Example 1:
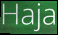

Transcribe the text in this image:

Haja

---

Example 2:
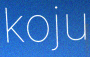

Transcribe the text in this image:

koju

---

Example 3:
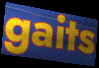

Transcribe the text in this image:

gaits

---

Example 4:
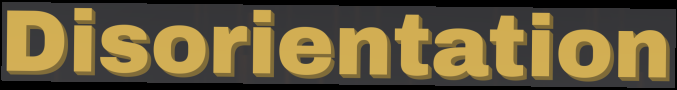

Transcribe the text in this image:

Disorientation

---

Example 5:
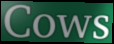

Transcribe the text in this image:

Cows